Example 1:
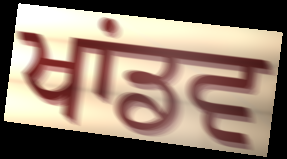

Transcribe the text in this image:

ਖਾਂਡਵ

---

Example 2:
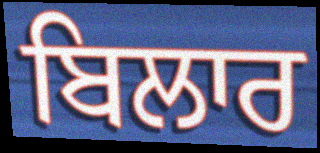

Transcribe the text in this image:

ਬਿਲਾਰ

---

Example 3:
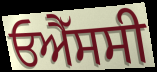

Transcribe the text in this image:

ਓਐੱਸਸੀ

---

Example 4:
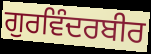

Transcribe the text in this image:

ਗੁਰਵਿੰਦਰਬੀਰ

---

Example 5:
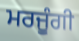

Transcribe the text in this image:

ਮਰਜੂੰਗੀ